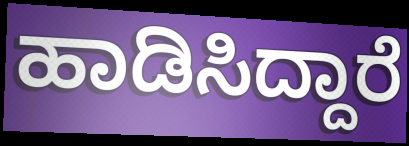
ಹಾಡಿಸಿದ್ದಾರೆ